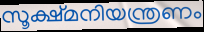
സൂക്ഷ്മനിയന്ത്രണം